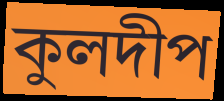
কুলদীপ